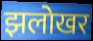
झलोखर